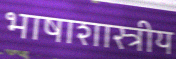
भाषाशास्त्रीय